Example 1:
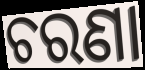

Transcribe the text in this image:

ଚରଣା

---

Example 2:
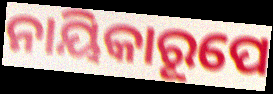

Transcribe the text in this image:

ନାୟିକାରୂପେ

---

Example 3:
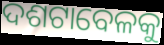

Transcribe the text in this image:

ଦଶଟାବେଳକୁ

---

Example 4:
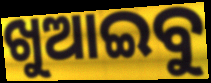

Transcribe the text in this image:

ଖୁଆଇବୁ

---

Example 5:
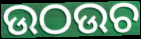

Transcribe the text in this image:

ଉଠଉଚ